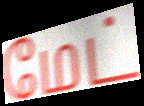
மேட்